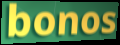
bonos